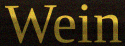
Wein